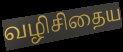
வழிசிதைய